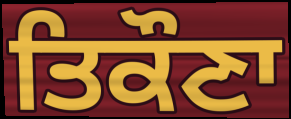
ਤਿਕੌਣਾ